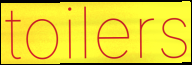
toilers